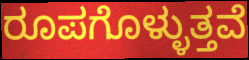
ರೂಪಗೊಳ್ಳುತ್ತವೆ